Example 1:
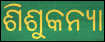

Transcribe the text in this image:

ଶିଶୁକନ୍ୟା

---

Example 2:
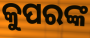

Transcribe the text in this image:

କୁପରଙ୍କ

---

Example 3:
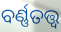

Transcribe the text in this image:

ବର୍ଣ୍ଣତତ୍ତ୍ଵ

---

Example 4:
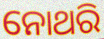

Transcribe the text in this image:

ନୋଥରି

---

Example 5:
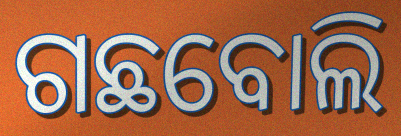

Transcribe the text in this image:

ଗଛବୋଲି